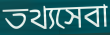
তথ্যসেবা